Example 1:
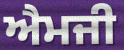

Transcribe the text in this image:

ਐਮਜੀ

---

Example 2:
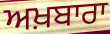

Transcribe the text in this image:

ਅਖ਼ਬਾਰਾ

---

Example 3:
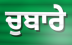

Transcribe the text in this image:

ਚੁਬਾਰੇ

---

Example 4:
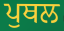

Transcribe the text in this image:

ਪੁਥਲ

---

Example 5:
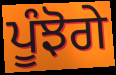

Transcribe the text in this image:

ਪੂੰਝੋਗੇ